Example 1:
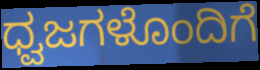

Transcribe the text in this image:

ಧ್ವಜಗಳೊಂದಿಗೆ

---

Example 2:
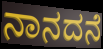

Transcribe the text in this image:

ನಾನದನೆ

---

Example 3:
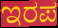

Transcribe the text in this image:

ಇರಪ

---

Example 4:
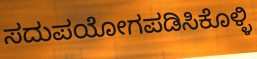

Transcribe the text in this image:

ಸದುಪಯೋಗಪಡಿಸಿಕೊಳ್ಳಿ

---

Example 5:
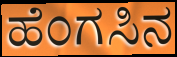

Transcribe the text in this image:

ಹೆಂಗಸಿನ